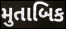
મુતાબિક